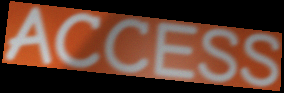
ACCESS